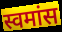
स्वमांस